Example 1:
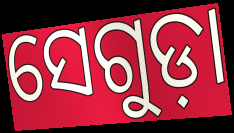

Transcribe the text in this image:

ସେଗୁଡ଼ା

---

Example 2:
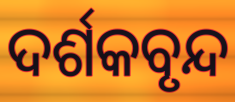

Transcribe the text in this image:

ଦର୍ଶକବୃନ୍ଦ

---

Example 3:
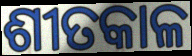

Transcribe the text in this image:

ଶୀତକାଳ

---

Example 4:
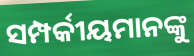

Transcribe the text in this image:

ସମ୍ପର୍କୀୟମାନଙ୍କୁ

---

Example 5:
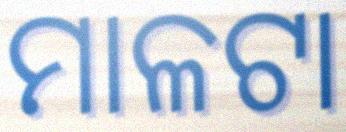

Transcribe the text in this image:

ମାଳଟା